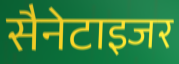
सैनेटाइजर